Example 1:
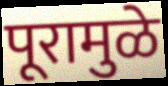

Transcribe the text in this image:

पूरामुळे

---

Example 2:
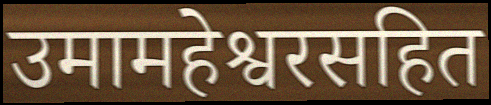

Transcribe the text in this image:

उमामहेश्वरसहित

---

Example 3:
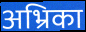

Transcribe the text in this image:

अभ्रिका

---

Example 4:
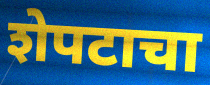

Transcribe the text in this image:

शेपटाचा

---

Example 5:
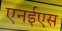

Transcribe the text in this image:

एनईएस